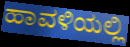
ಹಾವಳಿಯಲ್ಲಿ